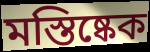
মস্তিষ্কেক